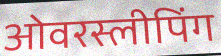
ओवरस्लीपिंग